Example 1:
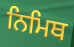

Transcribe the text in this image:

ਨਿਮਿਥ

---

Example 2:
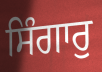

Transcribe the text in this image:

ਸਿੰਗਾਰੁ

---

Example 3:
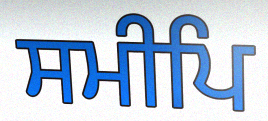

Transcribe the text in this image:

ਸਮੀਪਿ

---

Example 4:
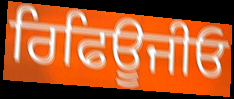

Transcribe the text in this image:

ਰਿਫਿਊਜੀਓ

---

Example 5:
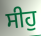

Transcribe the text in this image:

ਸੀਹੁ